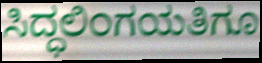
ಸಿದ್ಧಲಿಂಗಯತಿಗೂ